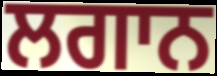
ਲਗਾਨ